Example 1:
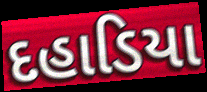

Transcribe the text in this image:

દહાડિયા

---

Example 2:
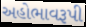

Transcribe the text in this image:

અહોભાવરૂપી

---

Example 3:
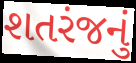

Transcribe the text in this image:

શતરંજનું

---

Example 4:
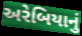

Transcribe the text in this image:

અરેબિયાનું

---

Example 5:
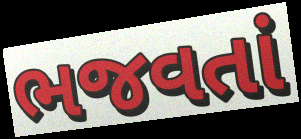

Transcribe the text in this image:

ભજવતાં